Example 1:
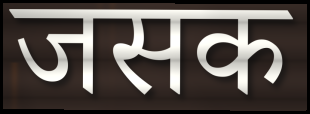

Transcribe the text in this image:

जसक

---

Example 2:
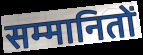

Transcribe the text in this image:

सम्मानितों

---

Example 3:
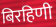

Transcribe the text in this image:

बिरहिणी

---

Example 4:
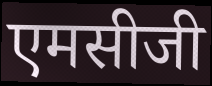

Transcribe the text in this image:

एमसीजी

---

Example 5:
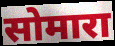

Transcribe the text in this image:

सोमारा